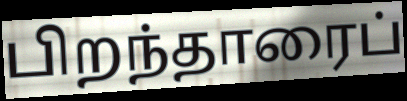
பிறந்தாரைப்